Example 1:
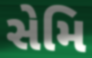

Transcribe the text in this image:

સેમિ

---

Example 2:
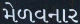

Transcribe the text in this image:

મેળવનાર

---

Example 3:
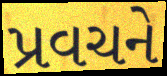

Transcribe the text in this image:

પ્રવચને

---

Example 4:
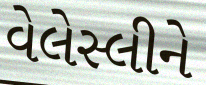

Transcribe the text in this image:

વેલેસ્લીને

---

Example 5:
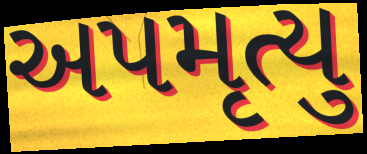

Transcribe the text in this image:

અપમૃત્યુ